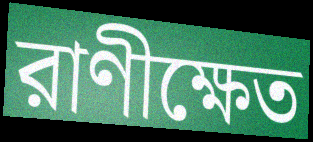
রাণীক্ষেত